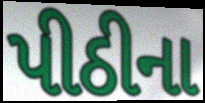
પીઠીના